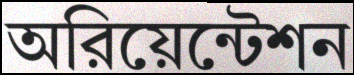
অরিয়েন্টেশন